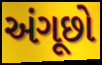
અંગૂછો